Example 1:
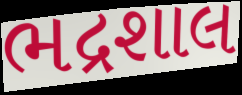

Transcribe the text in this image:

ભદ્રશાલ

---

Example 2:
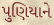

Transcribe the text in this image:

પુણિયાને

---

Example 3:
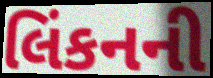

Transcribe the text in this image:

લિંકનની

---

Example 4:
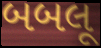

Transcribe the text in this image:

બબલૂ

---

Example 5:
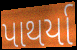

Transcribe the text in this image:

પાથર્યા